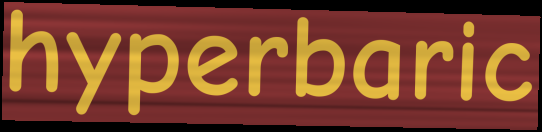
hyperbaric